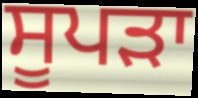
ਸੂਪੜਾ